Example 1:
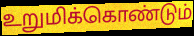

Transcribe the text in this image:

உறுமிக்கொண்டும்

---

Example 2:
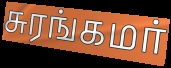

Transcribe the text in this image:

சுரங்கமர்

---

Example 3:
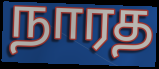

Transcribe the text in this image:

நாரத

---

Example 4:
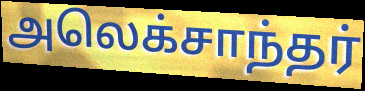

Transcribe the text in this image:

அலெக்சாந்தர்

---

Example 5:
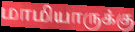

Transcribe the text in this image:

மாமியாருக்கு